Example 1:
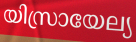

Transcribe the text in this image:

യിസ്രായേല്യ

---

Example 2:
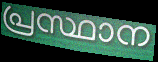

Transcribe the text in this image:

പ്രസ്ഥാന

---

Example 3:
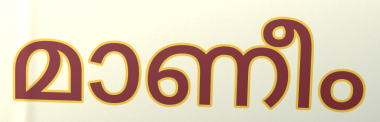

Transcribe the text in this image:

മാണീം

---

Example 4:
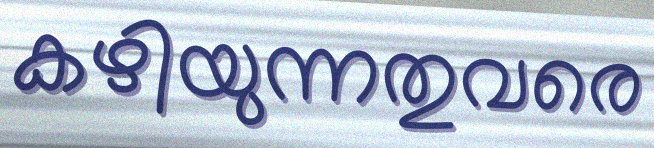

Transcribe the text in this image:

കഴിയുന്നതുവരെ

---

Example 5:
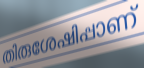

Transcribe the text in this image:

തിരുശേഷിപ്പാണ്